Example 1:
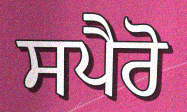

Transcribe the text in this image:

ਸਪੈਰੋ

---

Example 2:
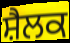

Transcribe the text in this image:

ਸ਼ੈਲਕ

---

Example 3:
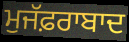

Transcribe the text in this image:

ਮੁਜੱਫ਼ਰਾਬਾਦ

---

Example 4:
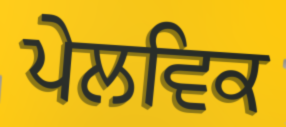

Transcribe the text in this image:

ਪੇਲਵਿਕ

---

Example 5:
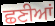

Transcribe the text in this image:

ਛਣੀਆਂ